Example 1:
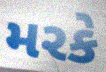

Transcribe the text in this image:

મરકે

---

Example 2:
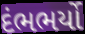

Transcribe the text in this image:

દંભભર્યો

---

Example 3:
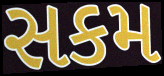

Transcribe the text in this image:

સકમ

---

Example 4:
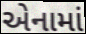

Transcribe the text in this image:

એનામાં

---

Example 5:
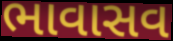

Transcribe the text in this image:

ભાવાસવ